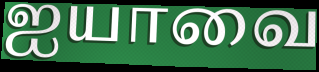
ஐயாவை